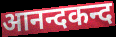
आनन्दकन्द